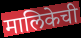
मालिकेची